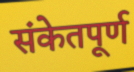
संकेतपूर्ण